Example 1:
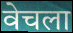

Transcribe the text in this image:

वेचला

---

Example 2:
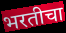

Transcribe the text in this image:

भरतीचा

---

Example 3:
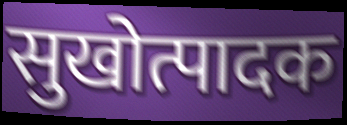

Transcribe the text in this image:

सुखोत्पादक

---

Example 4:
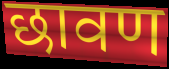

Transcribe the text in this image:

छावण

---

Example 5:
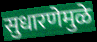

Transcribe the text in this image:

सुधारणेमुळे